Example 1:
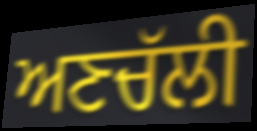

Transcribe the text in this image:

ਅਣਚੱਲੀ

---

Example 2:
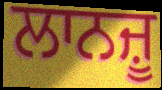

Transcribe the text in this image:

ਲਾਨਜ਼ੂ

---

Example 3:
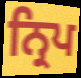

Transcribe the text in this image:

ਨ੍ਰਿਪ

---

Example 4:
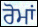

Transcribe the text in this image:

ਰੋਮਾਂ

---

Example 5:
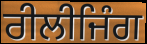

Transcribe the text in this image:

ਰੀਲੀਜਿੰਗ